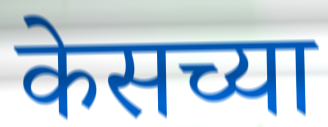
केसच्या